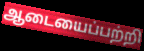
ஆடையைப்பற்றி